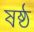
ষষ্ঠ